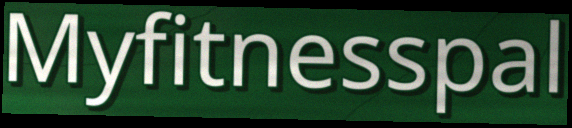
Myfitnesspal